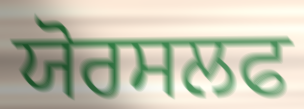
ਯੋਰਸਲਫ